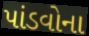
પાંડવોના